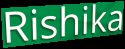
Rishika